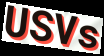
USVs